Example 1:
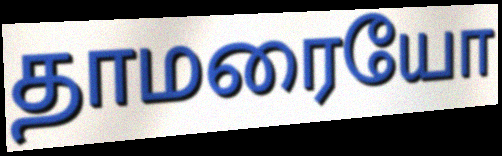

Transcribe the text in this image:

தாமரையோ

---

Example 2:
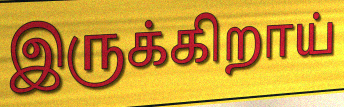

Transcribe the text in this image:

இருக்கிறாய்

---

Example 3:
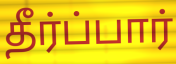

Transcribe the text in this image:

தீர்ப்பார்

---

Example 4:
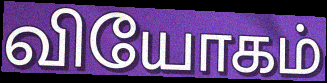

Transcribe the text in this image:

வியோகம்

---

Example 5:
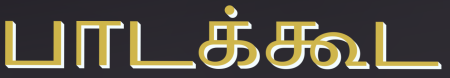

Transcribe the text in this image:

பாடக்கூட